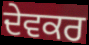
ਦੇਵਕਰ